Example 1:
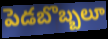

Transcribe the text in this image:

పెడబొబ్బలూ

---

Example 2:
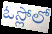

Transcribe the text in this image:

ఓస్లోలో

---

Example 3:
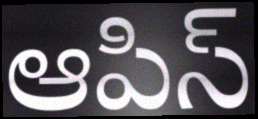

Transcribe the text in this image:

ఆపిస్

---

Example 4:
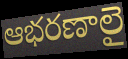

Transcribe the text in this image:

ఆభరణాలై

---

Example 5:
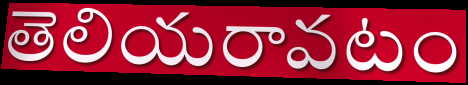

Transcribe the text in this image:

తెలియరావటం